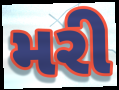
મરી